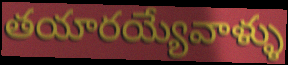
తయారయ్యేవాళ్ళు